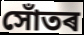
সোঁতৰ